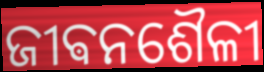
ଜୀଵନଶୈଳୀ